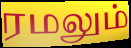
ரமலும்